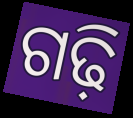
ଗଢ଼ି